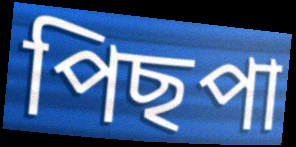
পিছপা